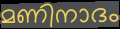
മണിനാദം